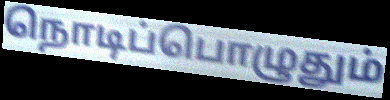
நொடிப்பொழுதும்